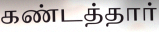
கண்டத்தார்